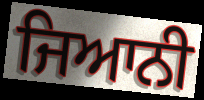
ਜਿਆਨੀ